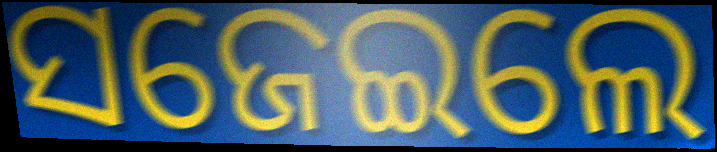
ସଜେଇଲେ